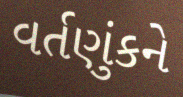
વર્તણુંકને